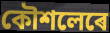
কৌশলেৰে